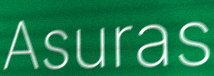
Asuras